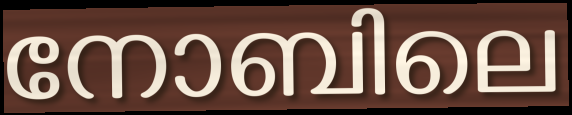
നോബിലെ